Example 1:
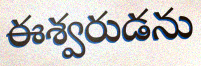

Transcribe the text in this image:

ఈశ్వరుడను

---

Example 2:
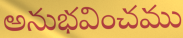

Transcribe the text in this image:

అనుభవించము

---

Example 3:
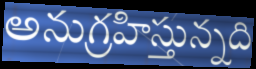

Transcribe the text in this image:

అనుగ్రహిస్తున్నది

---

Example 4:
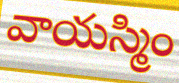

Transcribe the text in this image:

వాయస్మిం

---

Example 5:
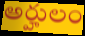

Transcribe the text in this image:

అర్హులం